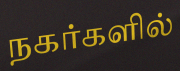
நகர்களில்